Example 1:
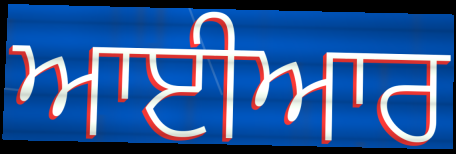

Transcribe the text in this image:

ਆਈਆਰ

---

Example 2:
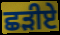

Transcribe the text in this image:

ਛੜੀਏ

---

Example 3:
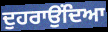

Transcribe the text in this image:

ਦੁਹਰਾਉਂਦਿਆ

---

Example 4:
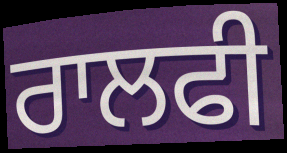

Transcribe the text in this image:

ਰਾਲਫੀ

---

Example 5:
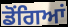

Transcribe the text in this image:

ਡੋਂਗਿਆਂ